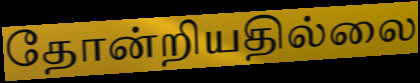
தோன்றியதில்லை